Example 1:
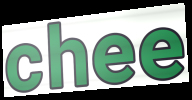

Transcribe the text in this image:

chee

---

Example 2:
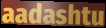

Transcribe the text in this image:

aadashtu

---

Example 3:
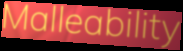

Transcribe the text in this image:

Malleability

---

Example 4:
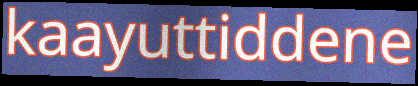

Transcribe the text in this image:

kaayuttiddene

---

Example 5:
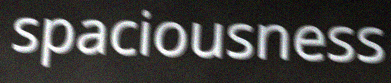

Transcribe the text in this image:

spaciousness